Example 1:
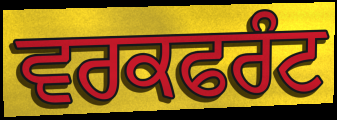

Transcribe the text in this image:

ਵਰਕਫਰੰਟ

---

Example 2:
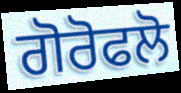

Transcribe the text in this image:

ਗੋਰੋਫਲੋ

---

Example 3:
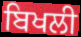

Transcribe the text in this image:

ਬਿਖਲੀ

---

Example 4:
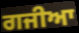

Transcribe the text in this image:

ਗਜੀਆ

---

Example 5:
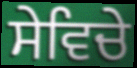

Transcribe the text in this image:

ਸੇਵਿਚੇ